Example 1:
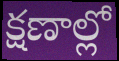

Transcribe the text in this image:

క్షణాల్లో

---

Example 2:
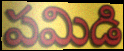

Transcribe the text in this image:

పమిడి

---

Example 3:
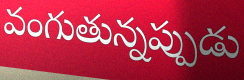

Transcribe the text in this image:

వంగుతున్నప్పుడు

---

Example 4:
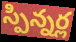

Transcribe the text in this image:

స్పిన్నర్ల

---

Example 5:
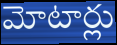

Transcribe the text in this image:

మోటార్లు